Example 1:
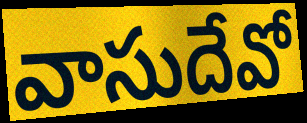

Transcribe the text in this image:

వాసుదేవో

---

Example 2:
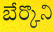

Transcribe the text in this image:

బేర్కొని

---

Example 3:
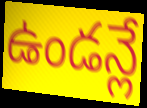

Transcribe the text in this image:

ఉండన్లే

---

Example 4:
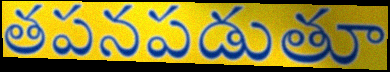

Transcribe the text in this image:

తపనపడుతూ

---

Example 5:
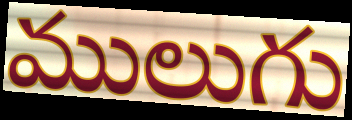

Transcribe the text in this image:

ములుగు